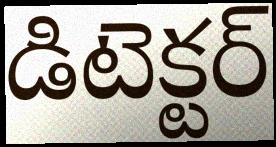
డిటెక్టర్